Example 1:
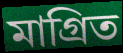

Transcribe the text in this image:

মাগ্রিত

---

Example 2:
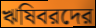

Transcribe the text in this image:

ঋষিবরদের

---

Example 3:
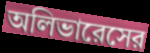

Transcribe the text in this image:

অলিভারেসের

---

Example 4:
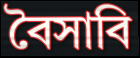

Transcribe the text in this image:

বৈসাবি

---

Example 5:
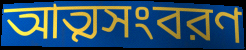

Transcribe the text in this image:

আত্মসংবরণ